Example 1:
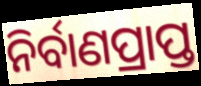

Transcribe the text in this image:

ନିର୍ବାଣପ୍ରାପ୍ତ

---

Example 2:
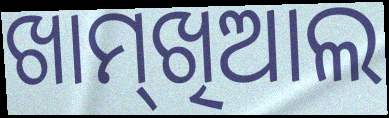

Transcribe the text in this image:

ଖାମ୍‌ଖିଆଲ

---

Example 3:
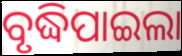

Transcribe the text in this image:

ବୃଦ୍ଧିପାଇଲା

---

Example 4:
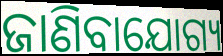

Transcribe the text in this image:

ଜାଣିବାଯୋଗ୍ୟ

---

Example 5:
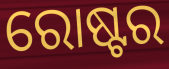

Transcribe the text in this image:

ରୋଷ୍ଟର